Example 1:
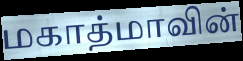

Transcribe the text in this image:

மகாத்மாவின்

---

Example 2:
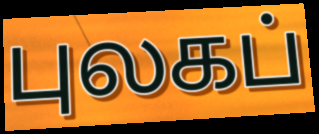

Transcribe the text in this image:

புலகப்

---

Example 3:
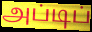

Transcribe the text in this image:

அப்டிப்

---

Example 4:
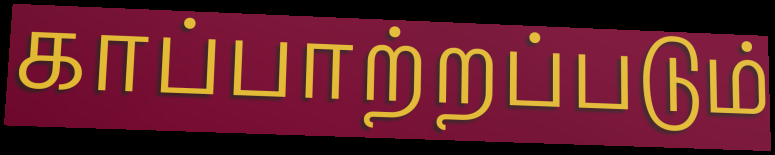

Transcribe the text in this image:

காப்பாற்றப்படும்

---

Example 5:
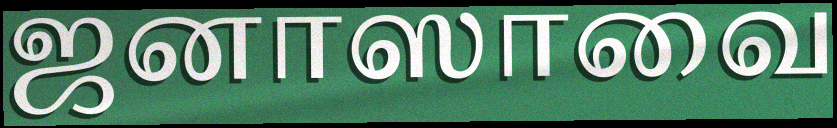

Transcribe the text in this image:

ஜனாஸாவை